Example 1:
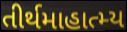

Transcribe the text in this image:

તીર્થમાહાત્મ્ય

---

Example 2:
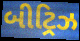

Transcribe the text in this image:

બીટ્રિઝ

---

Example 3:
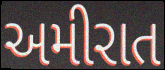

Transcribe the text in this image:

અમીરાત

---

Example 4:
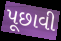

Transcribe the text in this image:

પૂછાવી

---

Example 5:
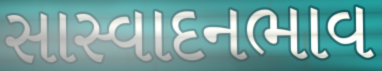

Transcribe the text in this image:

સાસ્વાદનભાવ